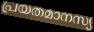
പ്രയതമാനസ്യ